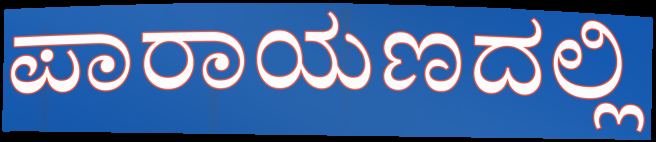
ಪಾರಾಯಣದಲ್ಲಿ